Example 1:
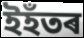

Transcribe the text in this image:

ইহঁতৰ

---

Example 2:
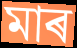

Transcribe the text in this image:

মাৰ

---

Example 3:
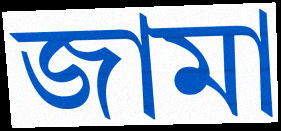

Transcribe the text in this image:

জামা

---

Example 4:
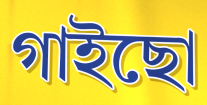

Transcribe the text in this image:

গাইছো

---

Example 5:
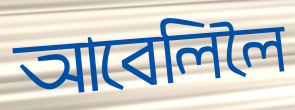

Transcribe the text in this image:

আবেলিলৈ